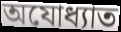
অযোধ্যাত